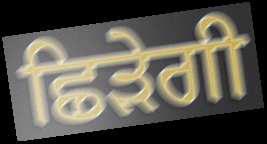
ਛਿੜੇਗੀ